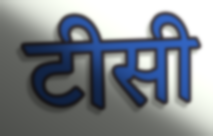
टीसी